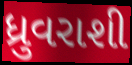
ધ્રુવરાશી